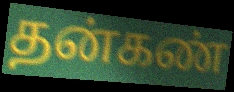
தன்கண்